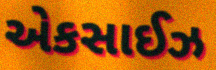
એકસાઈઝ